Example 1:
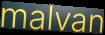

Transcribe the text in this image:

malvan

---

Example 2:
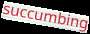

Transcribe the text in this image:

succumbing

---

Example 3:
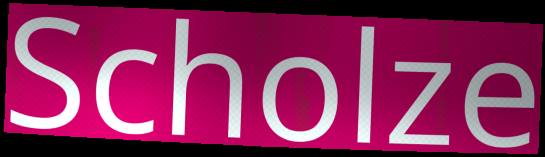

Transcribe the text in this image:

Scholze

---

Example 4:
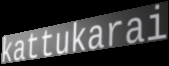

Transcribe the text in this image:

kattukarai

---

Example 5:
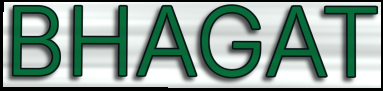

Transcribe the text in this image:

BHAGAT